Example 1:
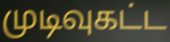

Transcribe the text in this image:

முடிவுகட்ட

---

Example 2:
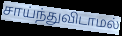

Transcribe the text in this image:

சாய்ந்துவிடாமல்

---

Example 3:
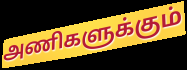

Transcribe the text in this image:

அணிகளுக்கும்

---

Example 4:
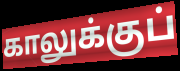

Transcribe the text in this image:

காலுக்குப்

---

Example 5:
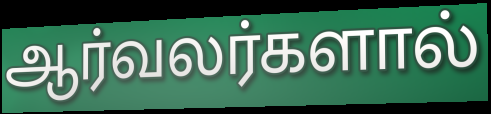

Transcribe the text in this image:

ஆர்வலர்களால்